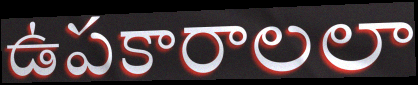
ఉపకారాలలా